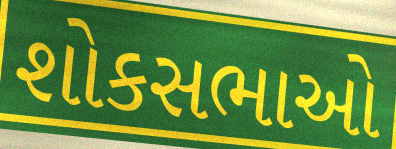
શોકસભાઓ